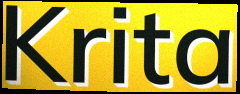
Krita